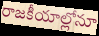
రాజకీయాల్లోనూ